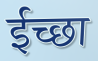
ईच्छा